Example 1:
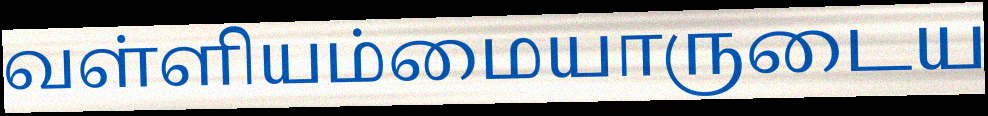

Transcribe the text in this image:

வள்ளியம்மையாருடைய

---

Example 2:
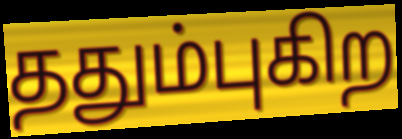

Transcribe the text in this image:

ததும்புகிற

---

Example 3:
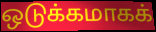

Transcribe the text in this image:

ஒடுக்கமாகக்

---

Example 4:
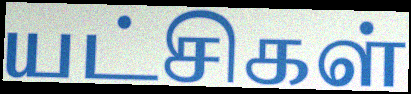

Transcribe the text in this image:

யட்சிகள்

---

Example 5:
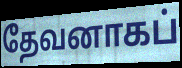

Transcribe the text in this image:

தேவனாகப்